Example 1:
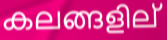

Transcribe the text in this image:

കലങ്ങളില്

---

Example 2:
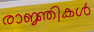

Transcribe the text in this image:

രാജ്ഞികൾ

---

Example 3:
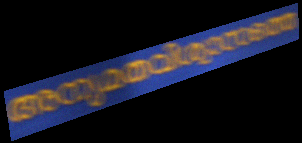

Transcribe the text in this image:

അന്യമതവിശ്വാസത്തെ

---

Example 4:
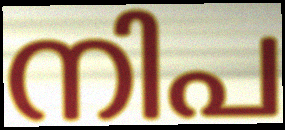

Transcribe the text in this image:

നിപ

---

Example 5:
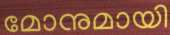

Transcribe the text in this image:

മോനുമായി